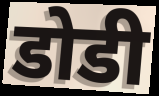
डोडी